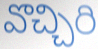
వొచ్చిరి